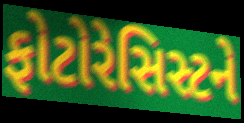
ફોટોરેસિસ્ટને